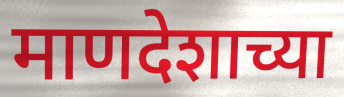
माणदेशाच्या